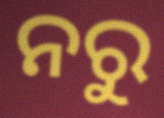
ନରୁ